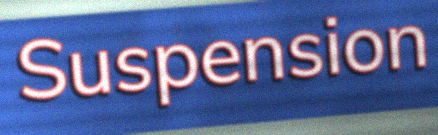
Suspension